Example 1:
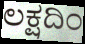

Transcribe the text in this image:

ಲಕ್ಷದಿಂ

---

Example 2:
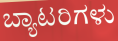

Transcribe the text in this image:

ಬ್ಯಾಟರಿಗಳು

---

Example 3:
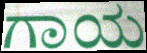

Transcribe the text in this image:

ಗಾಯ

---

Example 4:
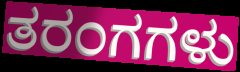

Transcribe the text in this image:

ತರಂಗಗಳು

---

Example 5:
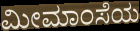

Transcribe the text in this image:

ಮೀಮಾಂಸೆಯ